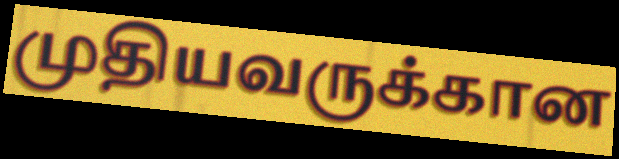
முதியவருக்கான